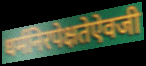
धर्मनिरपेक्षतेऐवजी